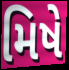
મિષે